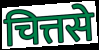
चित्तसे